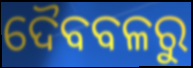
ଦୈବବଳରୁ